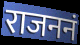
राजननं